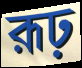
রূঢ়